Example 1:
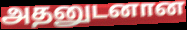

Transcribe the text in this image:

அதனுடனான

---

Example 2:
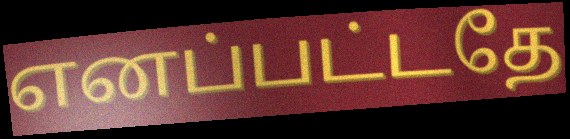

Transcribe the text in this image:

எனப்பட்டதே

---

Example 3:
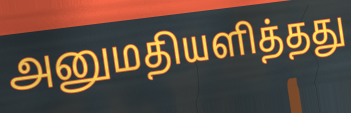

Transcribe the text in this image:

அனுமதியளித்தது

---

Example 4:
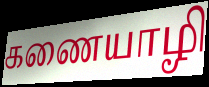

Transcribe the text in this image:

கணையாழி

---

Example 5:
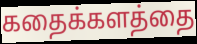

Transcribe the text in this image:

கதைக்களத்தை